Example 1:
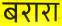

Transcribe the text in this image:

बरारा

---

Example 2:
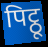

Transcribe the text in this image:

पिट्ठू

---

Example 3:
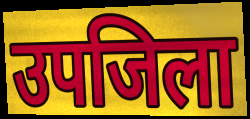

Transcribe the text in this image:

उपजिला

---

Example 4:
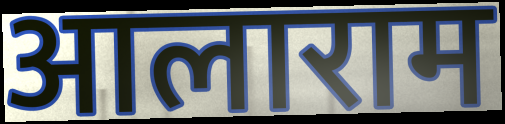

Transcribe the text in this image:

आलाराम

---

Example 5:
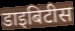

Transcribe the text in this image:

डाइबिटीस